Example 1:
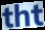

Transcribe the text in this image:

tht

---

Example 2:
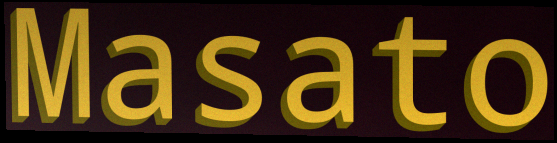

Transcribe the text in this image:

Masato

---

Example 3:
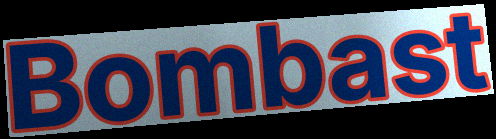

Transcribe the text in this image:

Bombast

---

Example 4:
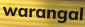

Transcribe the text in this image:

warangal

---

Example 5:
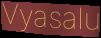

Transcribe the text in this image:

Vyasalu